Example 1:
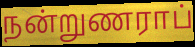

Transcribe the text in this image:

நன்றுணராப்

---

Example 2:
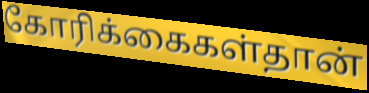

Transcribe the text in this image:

கோரிக்கைகள்தான்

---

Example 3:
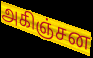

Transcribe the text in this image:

அகிஞ்சன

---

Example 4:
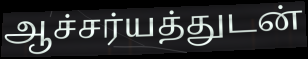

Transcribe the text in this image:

ஆச்சர்யத்துடன்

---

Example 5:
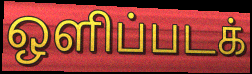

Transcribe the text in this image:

ஒளிப்படக்